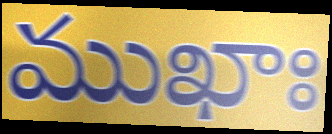
ముఖాః